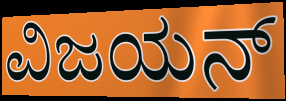
ವಿಜಯನ್